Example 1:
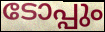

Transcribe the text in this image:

ടോപ്പും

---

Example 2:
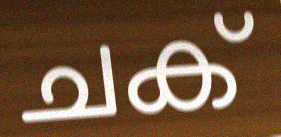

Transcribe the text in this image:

ചക്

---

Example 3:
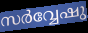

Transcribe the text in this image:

സർവ്വേഷു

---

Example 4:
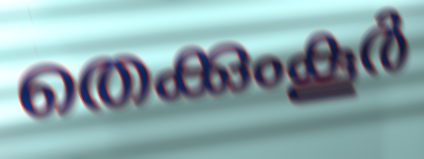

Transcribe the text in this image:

തെക്കുംകൂർ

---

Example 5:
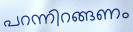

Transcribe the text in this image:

പറന്നിറങ്ങണം